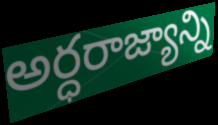
అర్ధరాజ్యాన్ని